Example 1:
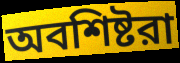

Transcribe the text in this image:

অবশিষ্টরা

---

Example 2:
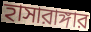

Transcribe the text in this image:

হাসারাঙ্গার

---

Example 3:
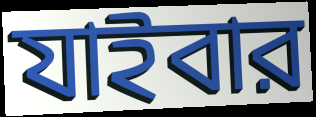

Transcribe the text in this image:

যাইবার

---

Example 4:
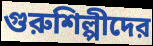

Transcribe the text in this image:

গুরুশিল্পীদের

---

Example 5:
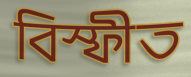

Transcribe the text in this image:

বিস্ফীত